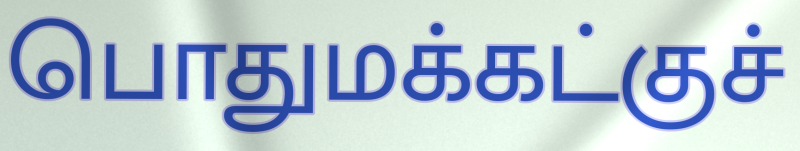
பொதுமக்கட்குச்